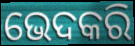
ଭେଦକରି